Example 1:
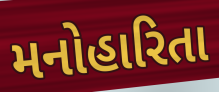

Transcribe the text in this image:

મનોહારિતા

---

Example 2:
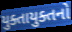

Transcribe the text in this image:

યુક્તાયુક્તનો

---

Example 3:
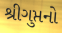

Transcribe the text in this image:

શ્રીગુપ્તનો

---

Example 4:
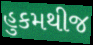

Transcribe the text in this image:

હુકમથીજ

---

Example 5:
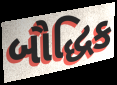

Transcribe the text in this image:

બૌદ્ધિક